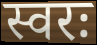
स्वरः